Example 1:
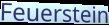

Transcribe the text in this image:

Feuerstein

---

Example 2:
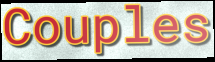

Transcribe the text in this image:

Couples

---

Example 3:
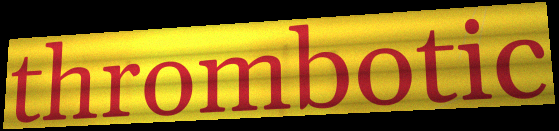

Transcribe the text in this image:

thrombotic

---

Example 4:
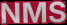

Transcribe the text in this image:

NMS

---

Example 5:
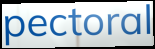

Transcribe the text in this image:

pectoral